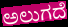
ಅಲುಗದೆ